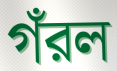
গঁরল